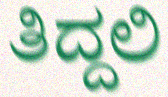
ತಿದ್ದಲಿ